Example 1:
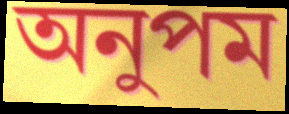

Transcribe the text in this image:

অনুপম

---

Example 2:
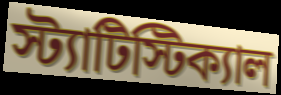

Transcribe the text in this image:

স্ট্যাটিস্টিক্যাল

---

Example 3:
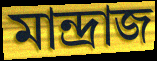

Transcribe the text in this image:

মান্দ্রাজ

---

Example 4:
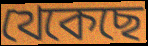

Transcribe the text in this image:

থেকেছে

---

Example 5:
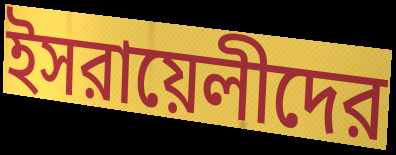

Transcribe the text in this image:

ইসরায়েলীদের